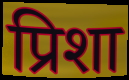
प्रिशा